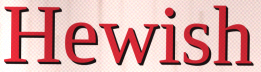
Hewish